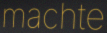
machte